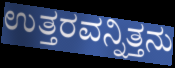
ಉತ್ತರವನ್ನಿತ್ತನು